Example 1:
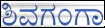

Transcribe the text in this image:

ಶಿವಗಂಗಾ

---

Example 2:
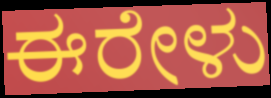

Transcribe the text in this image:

ಈರೇಳು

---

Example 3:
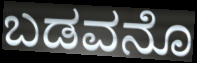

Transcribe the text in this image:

ಬಡವನೊ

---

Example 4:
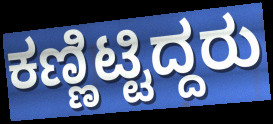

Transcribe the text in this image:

ಕಣ್ಣಿಟ್ಟಿದ್ದರು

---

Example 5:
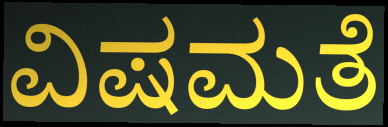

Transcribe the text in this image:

ವಿಷಮತೆ